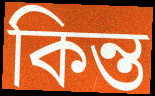
কিন্ত